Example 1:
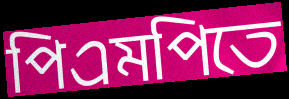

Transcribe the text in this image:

পিএমপিতে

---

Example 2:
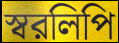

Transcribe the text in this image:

স্বরলিপি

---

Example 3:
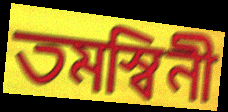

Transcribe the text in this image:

তমস্বিনী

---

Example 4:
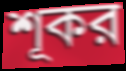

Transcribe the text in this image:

শূকর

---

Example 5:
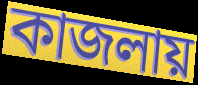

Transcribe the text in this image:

কাজলায়